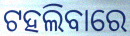
ଟହଲିବାରେ